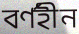
বৰ্ণহীন